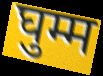
घुम्म